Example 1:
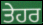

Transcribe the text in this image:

ਤੇਹਰ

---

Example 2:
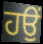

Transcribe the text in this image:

ਹਉਂ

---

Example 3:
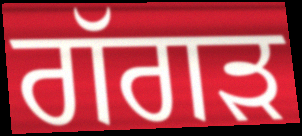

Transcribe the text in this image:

ਗੱਗੜ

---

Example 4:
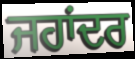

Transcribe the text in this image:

ਜਹਾਂਦਰ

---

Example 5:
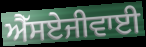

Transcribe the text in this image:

ਐੱਸਏਜੀਵਾਈ